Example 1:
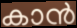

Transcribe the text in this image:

കാൻ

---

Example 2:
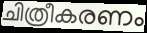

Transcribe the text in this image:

ചിത്രീകരണം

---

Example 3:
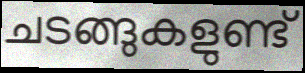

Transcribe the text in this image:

ചടങ്ങുകളുണ്ട്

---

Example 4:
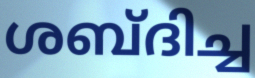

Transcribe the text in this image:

ശബ്ദിച്ച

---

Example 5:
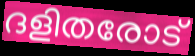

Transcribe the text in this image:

ദളിതരോട്